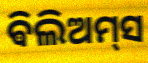
ଵିଲିଅମ୍‌ସ